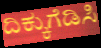
ದಿಕ್ಕುಗೆಡಿಸಿ